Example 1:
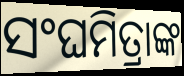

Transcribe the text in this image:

ସଂଘମିତ୍ରାଙ୍କ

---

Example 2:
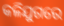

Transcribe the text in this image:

କଳିଯୁଗରେ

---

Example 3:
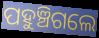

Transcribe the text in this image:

ପହୁଞ୍ଚିଗଲେ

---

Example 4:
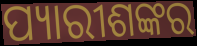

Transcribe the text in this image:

ପ୍ୟାରୀଶଙ୍କର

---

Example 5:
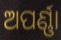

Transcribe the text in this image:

ଅପର୍ଣ୍ଣା